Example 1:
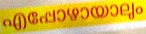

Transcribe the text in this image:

എപ്പോഴായാലും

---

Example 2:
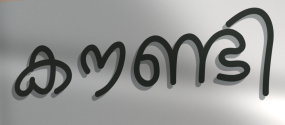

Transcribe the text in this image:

കൗണ്ടി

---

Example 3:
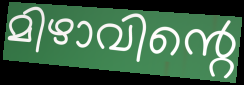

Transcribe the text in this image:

മിഴാവിന്റെ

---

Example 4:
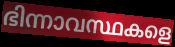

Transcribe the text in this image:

ഭിന്നാവസ്ഥകളെ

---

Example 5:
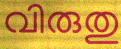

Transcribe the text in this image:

വിരുതു